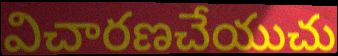
విచారణచేయుచు